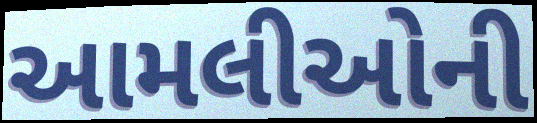
આમલીઓની